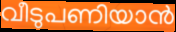
വീടുപണിയാൻ